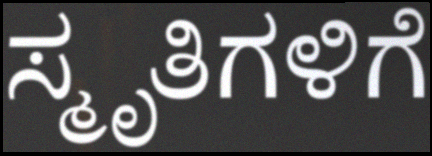
ಸ್ಮೃತಿಗಳಿಗೆ